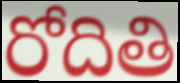
రోదితి